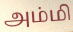
அம்மி